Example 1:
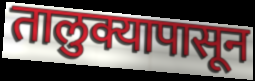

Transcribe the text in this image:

तालुक्यापासून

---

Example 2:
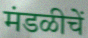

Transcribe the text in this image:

मंडळीचें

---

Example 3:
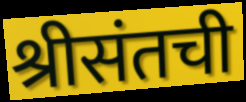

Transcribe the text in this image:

श्रीसंतची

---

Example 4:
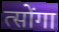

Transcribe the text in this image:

त्सोंगा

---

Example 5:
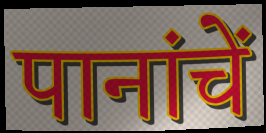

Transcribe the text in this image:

पानांचें